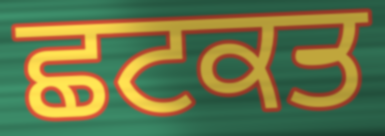
ਛਟਕਤ